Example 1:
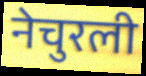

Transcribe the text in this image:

नेचुरली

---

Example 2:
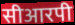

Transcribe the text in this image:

सीआरपी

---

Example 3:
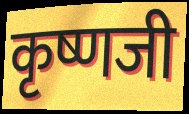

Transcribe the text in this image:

कृष्णजी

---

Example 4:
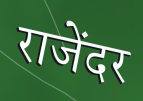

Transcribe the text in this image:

राजेंदर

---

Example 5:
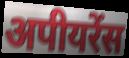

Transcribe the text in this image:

अपीयरेंस